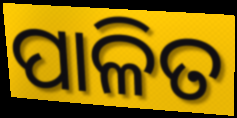
ପାଳିତ